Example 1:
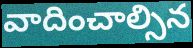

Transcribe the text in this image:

వాదించాల్సిన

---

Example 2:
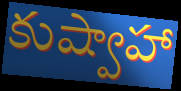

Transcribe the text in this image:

కుష్వాహా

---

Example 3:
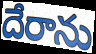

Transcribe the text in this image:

దేరాను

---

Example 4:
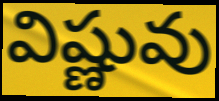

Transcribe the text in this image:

విష్ణువు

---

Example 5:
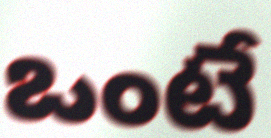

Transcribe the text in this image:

ఒంటే